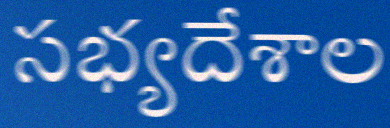
సభ్యదేశాల